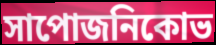
সাপোজনিকোভ